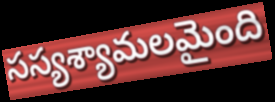
సస్యశ్యామలమైంది